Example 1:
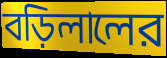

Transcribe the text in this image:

বড়িলালের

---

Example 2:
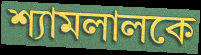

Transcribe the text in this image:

শ্যামলালকে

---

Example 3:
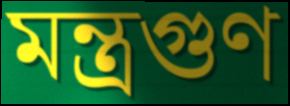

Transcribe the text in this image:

মন্ত্রগুণ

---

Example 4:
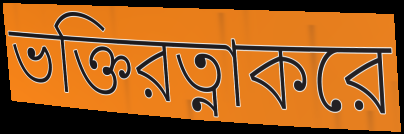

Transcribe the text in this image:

ভক্তিরত্নাকরে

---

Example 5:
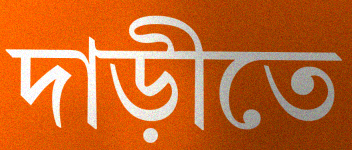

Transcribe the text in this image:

দাড়ীতে